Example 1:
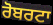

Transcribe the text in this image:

ਰੋਬਰਟਾ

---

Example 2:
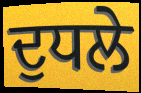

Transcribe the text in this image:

ਦੁਧਲੇ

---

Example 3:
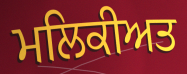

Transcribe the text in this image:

ਮਲਿਕੀਅਤ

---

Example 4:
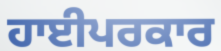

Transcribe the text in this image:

ਹਾਈਪਰਕਾਰ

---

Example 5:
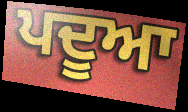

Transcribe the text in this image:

ਪਦੂਆ